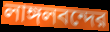
লাঙ্গলবন্দের